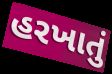
હરખાતું